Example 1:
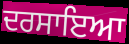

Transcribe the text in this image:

ਦਰਸਾਇਆ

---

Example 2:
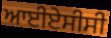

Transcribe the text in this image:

ਆਈਏਸੀਸੀ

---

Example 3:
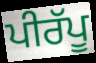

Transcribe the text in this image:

ਪੀਰੱਪੂ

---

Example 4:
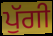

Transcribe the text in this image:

ਪੁੱਗੀ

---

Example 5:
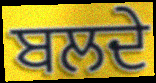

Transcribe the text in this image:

ਬਲਦੇ